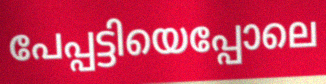
പേപ്പട്ടിയെപ്പോലെ